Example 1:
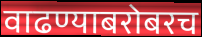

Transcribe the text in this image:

वाढण्याबरोबरच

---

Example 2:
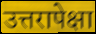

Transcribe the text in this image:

उत्तरापेक्षा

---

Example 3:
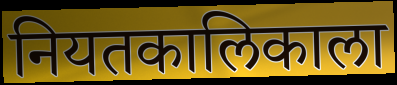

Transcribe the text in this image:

नियतकालिकाला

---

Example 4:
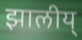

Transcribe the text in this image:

झालीय्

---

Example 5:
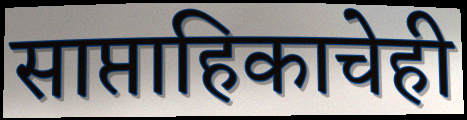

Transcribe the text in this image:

साप्ताहिकाचेही